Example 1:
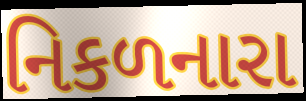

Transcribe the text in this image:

નિકળનારા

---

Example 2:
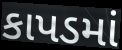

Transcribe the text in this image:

કાપડમાં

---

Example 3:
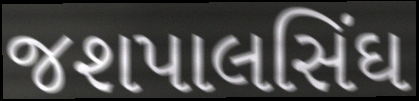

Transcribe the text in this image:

જશપાલસિંઘ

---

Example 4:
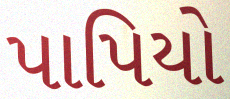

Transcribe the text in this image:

પાપિયો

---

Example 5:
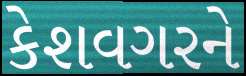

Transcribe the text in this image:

કેશવગરને